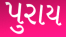
પુરાય